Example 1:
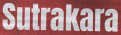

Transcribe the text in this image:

Sutrakara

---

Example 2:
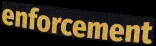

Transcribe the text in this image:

enforcement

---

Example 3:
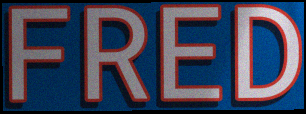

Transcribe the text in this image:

FRED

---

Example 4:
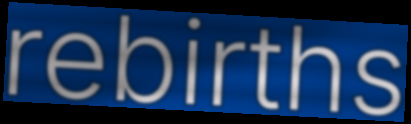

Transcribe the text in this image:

rebirths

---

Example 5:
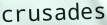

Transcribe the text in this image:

crusades